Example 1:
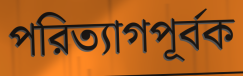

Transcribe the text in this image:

পরিত্যাগপূর্বক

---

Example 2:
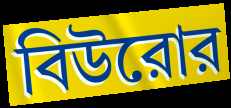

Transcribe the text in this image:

বিউরোর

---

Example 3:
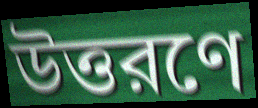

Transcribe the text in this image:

উত্তরণে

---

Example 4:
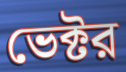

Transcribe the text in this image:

ভেক্টর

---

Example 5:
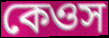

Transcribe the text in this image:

কেওস